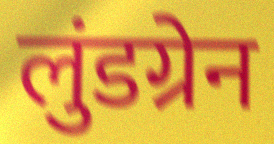
लुंडग्रेन